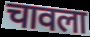
चावला